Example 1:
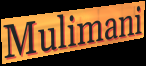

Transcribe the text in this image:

Mulimani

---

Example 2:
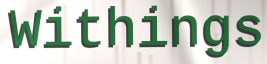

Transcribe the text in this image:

Withings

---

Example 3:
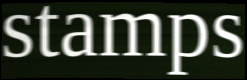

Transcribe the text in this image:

stamps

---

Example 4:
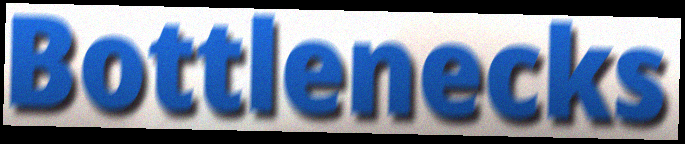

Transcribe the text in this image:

Bottlenecks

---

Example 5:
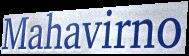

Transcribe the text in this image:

Mahavirno